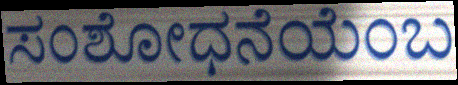
ಸಂಶೋಧನೆಯೆಂಬ